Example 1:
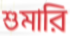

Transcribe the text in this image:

শুমারি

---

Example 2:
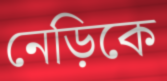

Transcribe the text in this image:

নেড়িকে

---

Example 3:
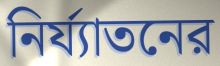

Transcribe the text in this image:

নির্য্যাতনের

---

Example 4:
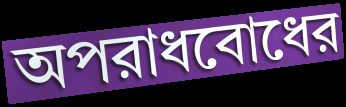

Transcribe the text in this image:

অপরাধবোধের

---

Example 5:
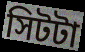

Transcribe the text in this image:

সিটটা